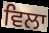
ਵਿਲਾ